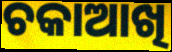
ଚକାଆଖି